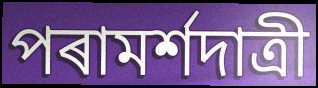
পৰামৰ্শদাত্ৰী